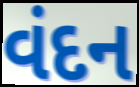
વંદન